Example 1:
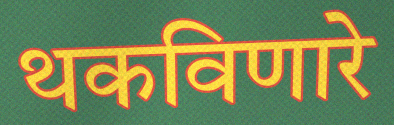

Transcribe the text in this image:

थकविणारे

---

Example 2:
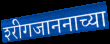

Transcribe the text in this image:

श्रीगजाननाच्या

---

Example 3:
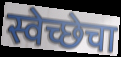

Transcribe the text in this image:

स्वेच्छेचा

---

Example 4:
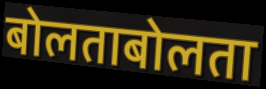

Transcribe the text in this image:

बोलताबोलता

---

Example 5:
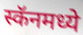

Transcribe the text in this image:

स्कॅनमध्ये